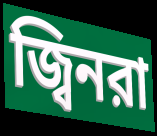
জ্বিনরা